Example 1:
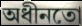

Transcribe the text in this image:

অধীনতো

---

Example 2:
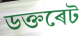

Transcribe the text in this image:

ডক্তৰেট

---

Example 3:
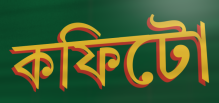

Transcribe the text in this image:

কফিটো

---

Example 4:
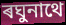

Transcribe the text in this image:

ৰঘুনাথে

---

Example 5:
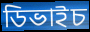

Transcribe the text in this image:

ডিভাইচ